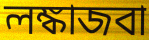
লঙ্কাজবা